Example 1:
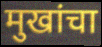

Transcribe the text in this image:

मुखांचा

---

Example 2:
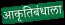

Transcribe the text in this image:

आकृतिबंधाला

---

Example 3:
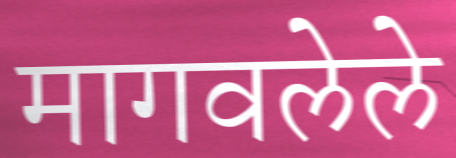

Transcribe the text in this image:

मागवलेले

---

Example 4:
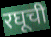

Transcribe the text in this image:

रघूची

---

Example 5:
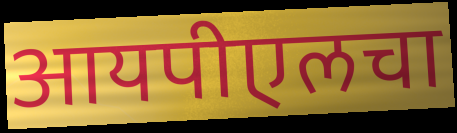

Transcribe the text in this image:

आयपीएलचा